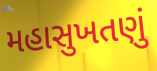
મહાસુખતણું